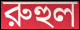
রুহুল